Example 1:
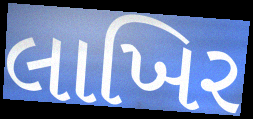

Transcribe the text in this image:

લાખિર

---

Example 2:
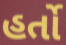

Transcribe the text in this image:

હર્તો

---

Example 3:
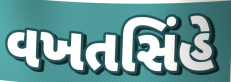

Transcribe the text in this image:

વખતસિંહે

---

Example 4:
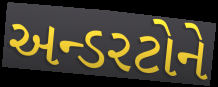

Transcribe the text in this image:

અન્ડરટોને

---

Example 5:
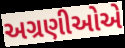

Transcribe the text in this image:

અગ્રણીઓએ